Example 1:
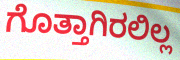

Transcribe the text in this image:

ಗೊತ್ತಾಗಿರಲಿಲ್ಲ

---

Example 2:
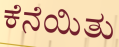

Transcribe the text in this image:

ಕೆನೆಯಿತು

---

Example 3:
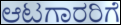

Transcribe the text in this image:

ಆಟಗಾರರಿಗೆ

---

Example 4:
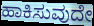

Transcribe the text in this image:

ಹಾಕಿಸುವುದೇ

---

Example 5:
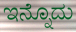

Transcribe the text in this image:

ಇನ್ನೊದು